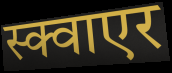
स्क्वाएर